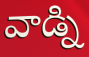
వాడ్ని